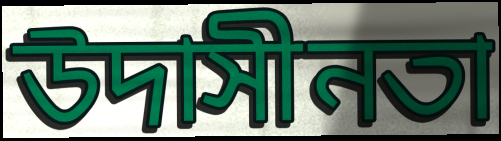
উদাসীনতা